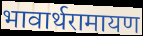
भावार्थरामायण